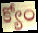
క్యోం